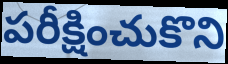
పరీక్షించుకొని